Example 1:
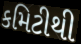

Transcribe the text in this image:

કમિટીથી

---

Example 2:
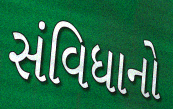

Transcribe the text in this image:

સંવિધાનો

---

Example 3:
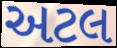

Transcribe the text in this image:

અટલ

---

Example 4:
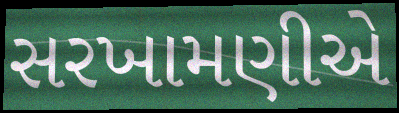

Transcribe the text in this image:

સરખામણીએ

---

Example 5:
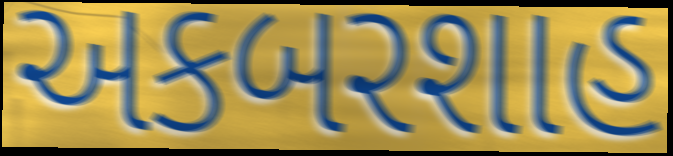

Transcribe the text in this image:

અકબરશાહ